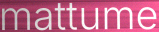
mattume